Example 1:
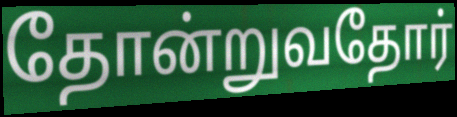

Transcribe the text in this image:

தோன்றுவதோர்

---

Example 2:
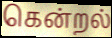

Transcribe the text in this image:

கென்றல்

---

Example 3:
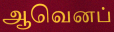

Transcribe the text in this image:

ஆவெனப்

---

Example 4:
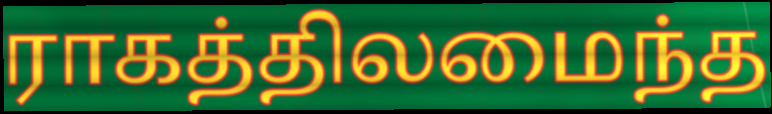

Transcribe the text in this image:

ராகத்திலமைந்த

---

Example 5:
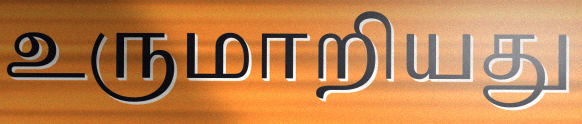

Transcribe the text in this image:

உருமாறியது